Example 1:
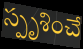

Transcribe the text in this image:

స్పృశించే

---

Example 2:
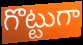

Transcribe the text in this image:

గొట్టుగా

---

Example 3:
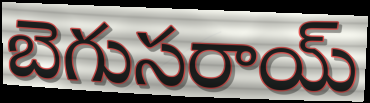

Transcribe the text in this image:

బెగుసరాయ్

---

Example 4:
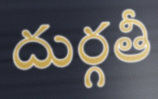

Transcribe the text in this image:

దుర్గతీ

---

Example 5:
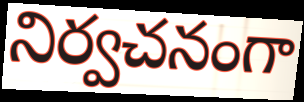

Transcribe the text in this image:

నిర్వచనంగా